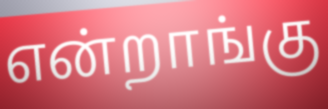
என்றாங்கு